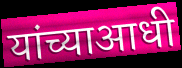
यांच्याआधी